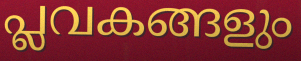
പ്ലവകങ്ങളും